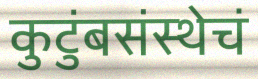
कुटुंबसंस्थेचं